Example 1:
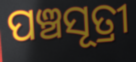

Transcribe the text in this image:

ପଞ୍ଚସୂତ୍ରୀ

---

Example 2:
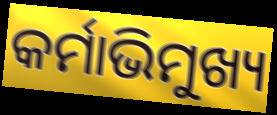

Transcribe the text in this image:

କର୍ମାଭିମୁଖ୍ୟ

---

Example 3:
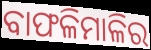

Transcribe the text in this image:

ବାଫଳିମାଳିର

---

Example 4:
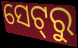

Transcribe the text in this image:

ସେଟ୍‌ରୁ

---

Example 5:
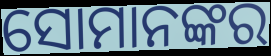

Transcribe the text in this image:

ସୋମାନଙ୍କର